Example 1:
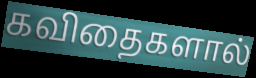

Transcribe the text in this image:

கவிதைகளால்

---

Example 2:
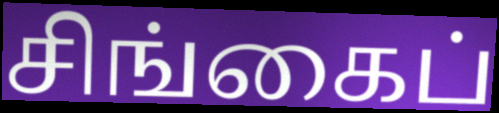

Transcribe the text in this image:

சிங்கைப்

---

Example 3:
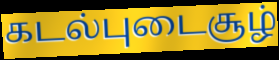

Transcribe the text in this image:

கடல்புடைசூழ்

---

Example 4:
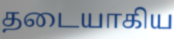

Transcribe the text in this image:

தடையாகிய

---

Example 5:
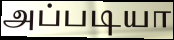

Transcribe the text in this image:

அப்படியா